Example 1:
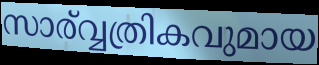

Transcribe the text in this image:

സാര്വ്വത്രികവുമായ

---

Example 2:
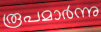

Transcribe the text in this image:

രൂപമാർന്നു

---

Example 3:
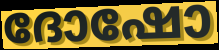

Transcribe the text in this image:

ദോഷോ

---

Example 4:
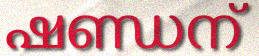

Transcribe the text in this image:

ഷണ്ഡന്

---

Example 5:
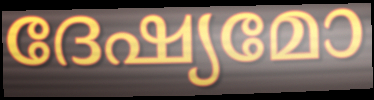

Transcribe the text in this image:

ദേഷ്യമോ